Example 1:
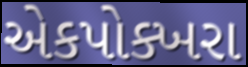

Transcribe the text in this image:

એકપોક્ખરા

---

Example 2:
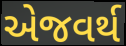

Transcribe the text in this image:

એજવર્થ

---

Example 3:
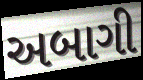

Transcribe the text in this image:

અબાગી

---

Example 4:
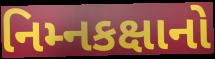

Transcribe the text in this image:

નિમ્નકક્ષાનો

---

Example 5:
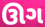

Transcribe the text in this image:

ઊગ